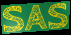
SAS